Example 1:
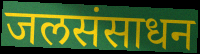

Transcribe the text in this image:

जलसंसाधन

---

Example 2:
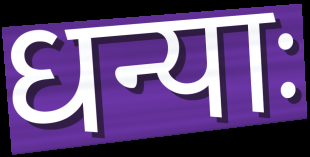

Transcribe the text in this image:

धन्याः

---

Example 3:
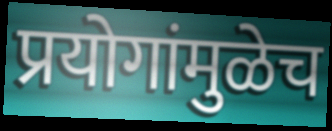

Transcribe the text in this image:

प्रयोगांमुळेच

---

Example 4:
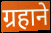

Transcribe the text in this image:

ग्रहाने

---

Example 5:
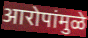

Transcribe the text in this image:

आरोपांमुळे